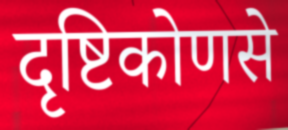
दृष्टिकोणसे